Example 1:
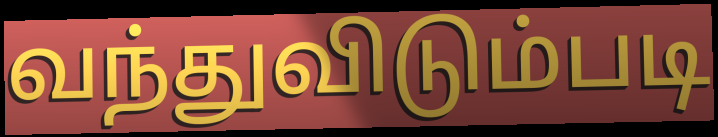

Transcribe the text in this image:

வந்துவிடும்படி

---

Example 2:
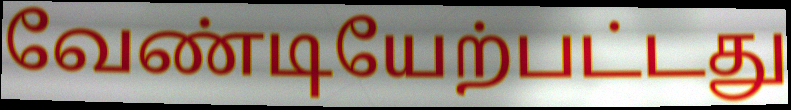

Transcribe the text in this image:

வேண்டியேற்பட்டது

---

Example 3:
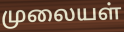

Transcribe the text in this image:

முலையள்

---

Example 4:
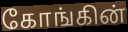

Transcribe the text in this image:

கோங்கின்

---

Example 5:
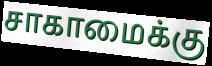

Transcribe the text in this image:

சாகாமைக்கு